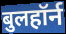
बुलहॉर्न